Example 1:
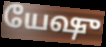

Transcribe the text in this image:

யேஷு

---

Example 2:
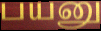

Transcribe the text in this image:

பயனு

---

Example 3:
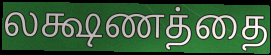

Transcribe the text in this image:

லக்ஷணத்தை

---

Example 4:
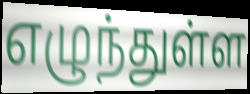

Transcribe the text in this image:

எழுந்துள்ள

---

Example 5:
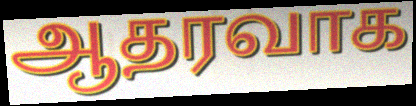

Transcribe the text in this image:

ஆதரவாக